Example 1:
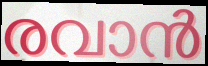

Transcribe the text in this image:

രവാൻ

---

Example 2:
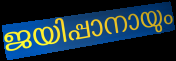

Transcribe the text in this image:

ജയിപ്പാനായും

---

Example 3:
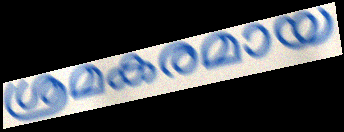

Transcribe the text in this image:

ശ്രമകരമായ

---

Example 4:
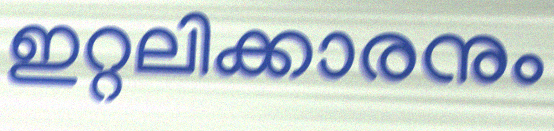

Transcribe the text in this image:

ഇറ്റലിക്കാരനും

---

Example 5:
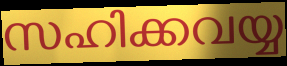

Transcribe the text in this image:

സഹിക്കവയ്യ